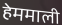
हेममाली